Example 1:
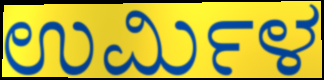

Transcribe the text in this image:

ಉರ್ಮಿಳ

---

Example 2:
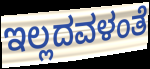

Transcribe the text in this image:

ಇಲ್ಲದವಳಂತೆ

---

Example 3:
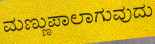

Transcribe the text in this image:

ಮಣ್ಣುಪಾಲಾಗುವುದು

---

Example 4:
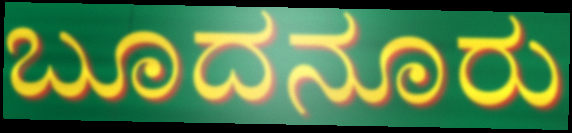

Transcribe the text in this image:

ಬೂದನೂರು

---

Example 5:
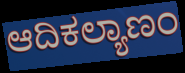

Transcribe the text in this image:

ಆದಿಕಲ್ಯಾಣಂ